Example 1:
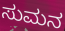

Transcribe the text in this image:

ಸುಮನ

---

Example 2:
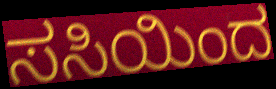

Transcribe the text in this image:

ಸಸಿಯಿಂದ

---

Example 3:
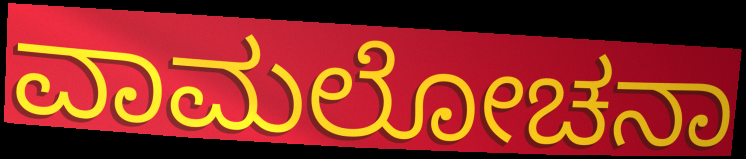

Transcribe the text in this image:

ವಾಮಲೋಚನಾ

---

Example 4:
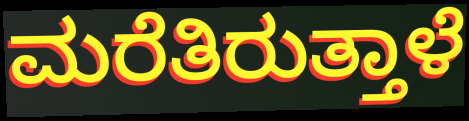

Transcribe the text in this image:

ಮರೆತಿರುತ್ತಾಳೆ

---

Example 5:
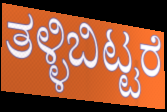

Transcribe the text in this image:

ತಳ್ಳಿಬಿಟ್ಟರೆ